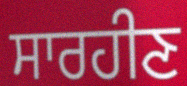
ਸਾਰਹੀਣ